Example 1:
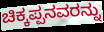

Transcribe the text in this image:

ಚಿಕ್ಕಪ್ಪನವರನ್ನು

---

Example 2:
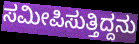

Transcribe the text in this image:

ಸಮೀಪಿಸುತ್ತಿದ್ದನು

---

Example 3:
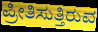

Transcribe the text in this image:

ಪ್ರೀತಿಸುತ್ತಿರುವ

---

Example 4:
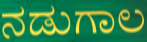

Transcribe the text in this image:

ನಡುಗಾಲ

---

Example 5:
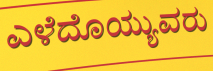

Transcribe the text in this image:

ಎಳೆದೊಯ್ಯುವರು